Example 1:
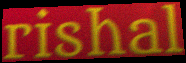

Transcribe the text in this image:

rishal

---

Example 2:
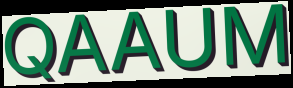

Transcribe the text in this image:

QAAUM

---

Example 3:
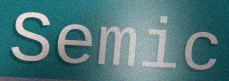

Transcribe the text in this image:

Semic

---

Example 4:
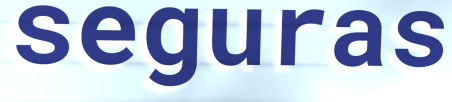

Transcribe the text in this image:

seguras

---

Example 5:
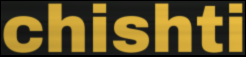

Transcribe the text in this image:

chishti